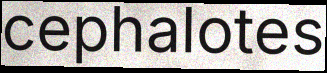
cephalotes